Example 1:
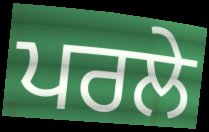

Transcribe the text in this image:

ਪਰਲੇ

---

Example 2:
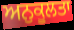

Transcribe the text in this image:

ਅਨੁਕੂਲਤਾ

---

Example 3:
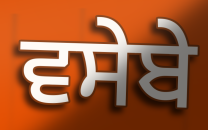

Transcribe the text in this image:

ਵਸੇਬੇ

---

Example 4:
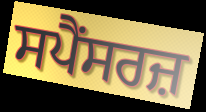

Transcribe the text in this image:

ਸਪੈਂਸਰਜ਼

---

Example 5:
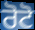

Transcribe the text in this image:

ਰੋਟੋ